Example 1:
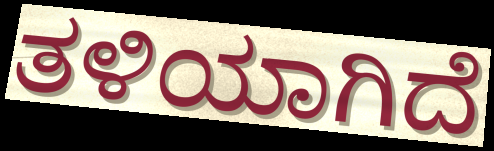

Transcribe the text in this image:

ತಳಿಯಾಗಿದೆ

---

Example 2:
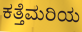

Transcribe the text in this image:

ಕತ್ತೆಮರಿಯ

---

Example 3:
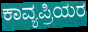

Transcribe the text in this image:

ಕಾವ್ಯಪ್ರಿಯರ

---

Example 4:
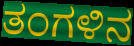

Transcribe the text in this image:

ತಂಗಳಿನ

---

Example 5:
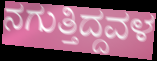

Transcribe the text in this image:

ನಗುತ್ತಿದ್ದವಳ